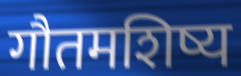
गौतमशिष्य